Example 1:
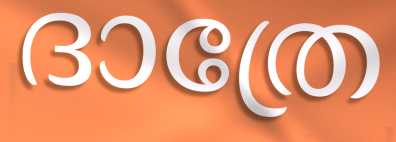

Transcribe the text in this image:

ദാത്രേ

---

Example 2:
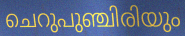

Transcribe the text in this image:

ചെറുപുഞ്ചിരിയും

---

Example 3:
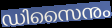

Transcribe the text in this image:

ഡിസൈനും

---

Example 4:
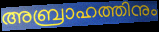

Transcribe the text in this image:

അബ്രാഹത്തിനും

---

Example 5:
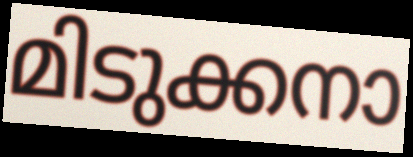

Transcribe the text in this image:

മിടുക്കനാ